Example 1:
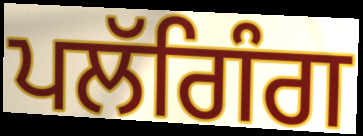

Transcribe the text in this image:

ਪਲੱਗਿੰਗ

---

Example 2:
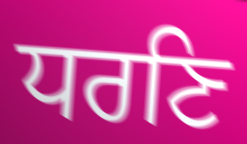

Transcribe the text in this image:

ਧਰਣਿ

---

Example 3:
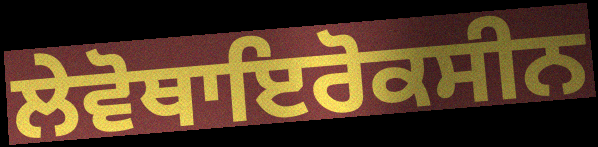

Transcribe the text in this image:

ਲੇਵੋਥਾਇਰੋਕਸੀਨ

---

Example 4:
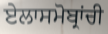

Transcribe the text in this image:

ਏਲਾਸਮੋਬ੍ਰਾਂਚੀ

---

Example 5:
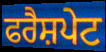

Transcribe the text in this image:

ਫਰੈਸ਼ਪੇਟ